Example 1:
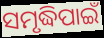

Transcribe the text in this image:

ସମୃଦ୍ଧିପାଇଁ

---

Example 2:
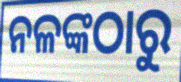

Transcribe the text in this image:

ନଳଙ୍କଠାରୁ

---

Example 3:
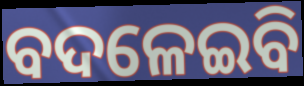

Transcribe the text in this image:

ବଦଳେଇବି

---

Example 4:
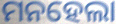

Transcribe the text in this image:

ମନହେଲା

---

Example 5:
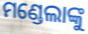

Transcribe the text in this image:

ମଣ୍ଡେଲାଙ୍କୁ